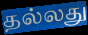
தல்லது